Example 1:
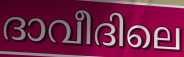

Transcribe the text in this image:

ദാവീദിലെ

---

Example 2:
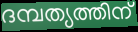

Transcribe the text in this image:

ദമ്പത്യത്തിന്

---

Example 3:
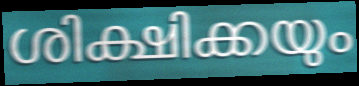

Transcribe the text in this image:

ശിക്ഷിക്കയും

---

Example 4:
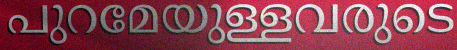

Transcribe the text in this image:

പുറമേയുള്ളവരുടെ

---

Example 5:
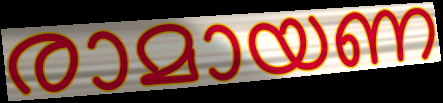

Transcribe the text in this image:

രാമായണ